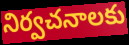
నిర్వచనాలకు